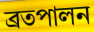
ব্রতপালন